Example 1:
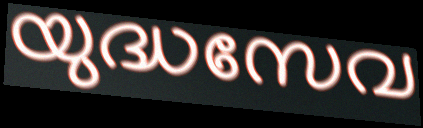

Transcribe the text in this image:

യുദ്ധസേവ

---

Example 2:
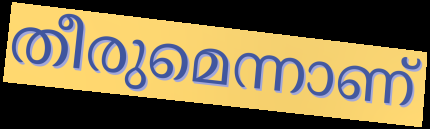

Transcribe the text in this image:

തീരുമെന്നാണ്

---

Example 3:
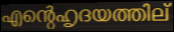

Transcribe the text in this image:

എന്റെഹൃദയത്തില്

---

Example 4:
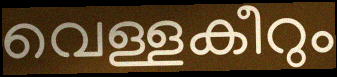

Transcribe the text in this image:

വെള്ളകീറും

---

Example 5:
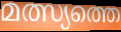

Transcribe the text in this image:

മത്സ്യത്തെ